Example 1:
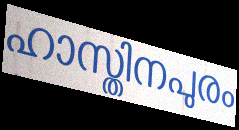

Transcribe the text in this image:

ഹാസ്തിനപുരം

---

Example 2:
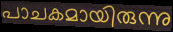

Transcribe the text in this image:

പാചകമായിരുന്നു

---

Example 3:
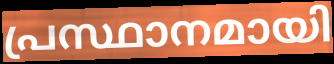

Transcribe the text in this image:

പ്രസ്ഥാനമായി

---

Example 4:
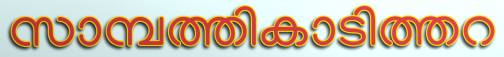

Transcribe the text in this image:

സാമ്പത്തികാടിത്തറ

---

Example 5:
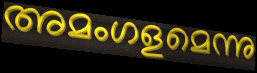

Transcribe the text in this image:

അമംഗളമെന്നു